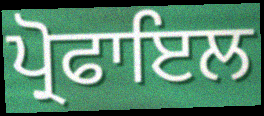
ਪ੍ਰੋਫਾਇਲ